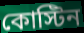
কোস্টিন